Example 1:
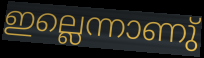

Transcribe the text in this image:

ഇല്ലെന്നാണു്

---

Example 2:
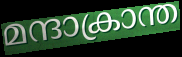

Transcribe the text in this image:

മന്ദാക്രാന്ത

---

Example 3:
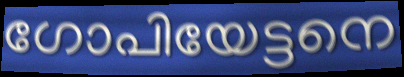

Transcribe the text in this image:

ഗോപിയേട്ടനെ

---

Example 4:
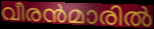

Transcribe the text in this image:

വീരൻമാരിൽ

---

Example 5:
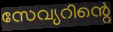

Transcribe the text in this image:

സേവ്യറിന്റെ